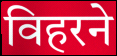
विहरने